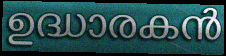
ഉദ്ധാരകൻ